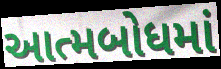
આત્મબોધમાં